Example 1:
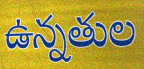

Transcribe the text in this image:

ఉన్నతుల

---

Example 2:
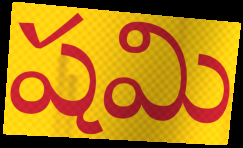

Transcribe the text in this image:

షమి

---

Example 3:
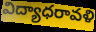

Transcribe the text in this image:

విద్యాధరావళి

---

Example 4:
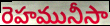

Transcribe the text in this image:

రెహమునీసా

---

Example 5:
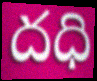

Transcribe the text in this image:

దధి